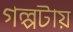
গল্পটায়